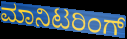
ಮಾನಿಟರಿಂಗ್